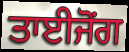
ਤਾਈਜੋਂਗ